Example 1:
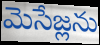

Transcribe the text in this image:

మెసేజ్లను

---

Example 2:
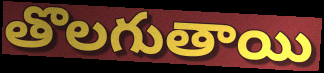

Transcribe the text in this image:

తొలగుతాయి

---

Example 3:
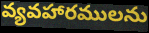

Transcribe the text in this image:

వ్యవహారములను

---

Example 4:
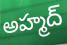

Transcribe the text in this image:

అహ్మద్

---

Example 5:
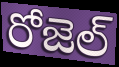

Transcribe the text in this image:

రోజెల్